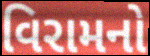
વિરામનો